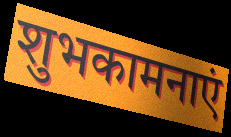
शुभकामनाएं